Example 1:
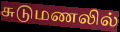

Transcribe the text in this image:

சுடுமணலில்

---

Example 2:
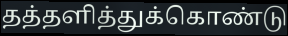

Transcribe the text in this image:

தத்தளித்துக்கொண்டு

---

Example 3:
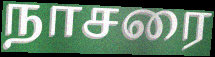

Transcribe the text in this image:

நாசரை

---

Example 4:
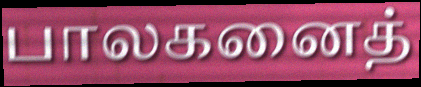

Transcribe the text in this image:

பாலகனைத்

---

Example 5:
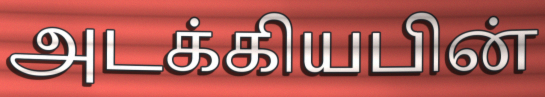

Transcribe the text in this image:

அடக்கியபின்